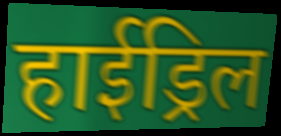
हाईड्रिल